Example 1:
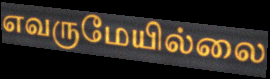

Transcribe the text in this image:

எவருமேயில்லை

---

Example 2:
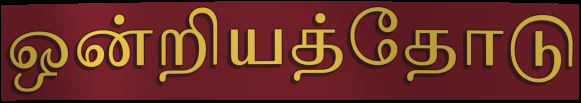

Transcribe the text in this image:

ஒன்றியத்தோடு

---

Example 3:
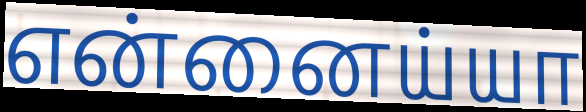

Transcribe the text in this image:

என்னைய்யா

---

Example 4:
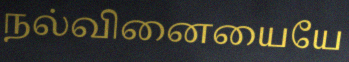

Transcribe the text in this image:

நல்வினையையே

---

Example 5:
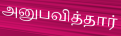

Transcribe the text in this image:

அனுபவித்தார்